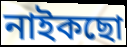
নাইকছো